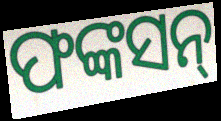
ଫଙ୍କସନ୍